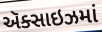
ઍક્સાઇઝમાં